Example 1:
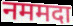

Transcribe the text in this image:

नममदा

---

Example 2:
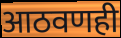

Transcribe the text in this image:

आठवणही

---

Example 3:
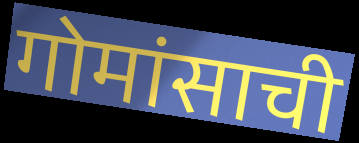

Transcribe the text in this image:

गोमांसाची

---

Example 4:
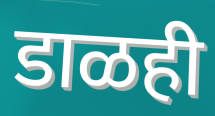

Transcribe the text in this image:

डाळही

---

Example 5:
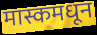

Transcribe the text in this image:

मास्कमधून